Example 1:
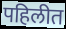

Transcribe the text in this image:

पहिलीत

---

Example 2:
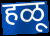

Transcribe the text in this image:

हळू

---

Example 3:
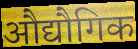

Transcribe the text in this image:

औद्यौगिक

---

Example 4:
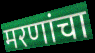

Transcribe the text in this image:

मरणांचा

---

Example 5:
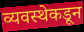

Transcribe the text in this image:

व्यवस्थेकडून